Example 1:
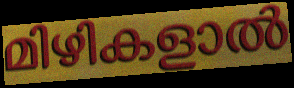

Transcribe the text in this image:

മിഴികളാൽ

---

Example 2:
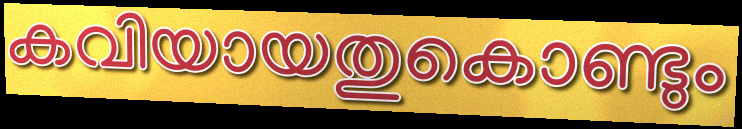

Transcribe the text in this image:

കവിയായതുകൊണ്ടും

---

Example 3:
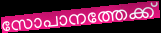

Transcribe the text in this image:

സോപാനത്തേക്ക്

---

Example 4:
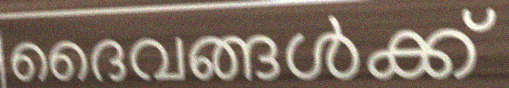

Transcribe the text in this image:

ദൈവങ്ങൾക്ക്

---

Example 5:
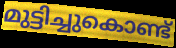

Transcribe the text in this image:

മുട്ടിച്ചുകൊണ്ട്